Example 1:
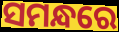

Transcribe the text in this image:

ସମନ୍ଧରେ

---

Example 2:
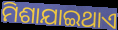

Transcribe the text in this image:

ମିଶାଯାଇଥାଏ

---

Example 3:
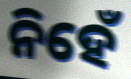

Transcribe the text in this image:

ନିହେଁ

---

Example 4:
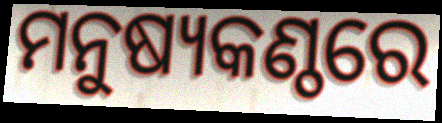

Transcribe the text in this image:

ମନୁଷ୍ୟକଣ୍ଠରେ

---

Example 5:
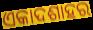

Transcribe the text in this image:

ଏକାଦଶାହର